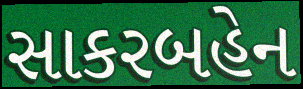
સાકરબહેન